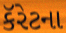
કૅરેટના